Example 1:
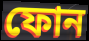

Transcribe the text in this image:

ফোন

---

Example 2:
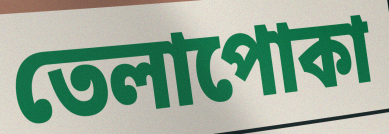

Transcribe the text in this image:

তেলাপোকা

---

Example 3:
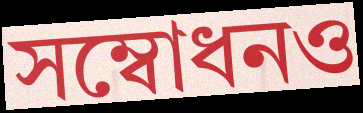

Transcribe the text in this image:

সম্বোধনও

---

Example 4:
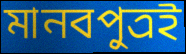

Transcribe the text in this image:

মানবপুত্রই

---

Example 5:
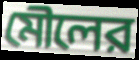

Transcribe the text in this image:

মৌলের